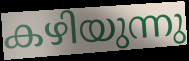
കഴിയുന്നു